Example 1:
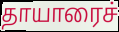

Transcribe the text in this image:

தாயாரைச்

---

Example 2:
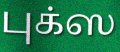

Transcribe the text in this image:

புக்ஸ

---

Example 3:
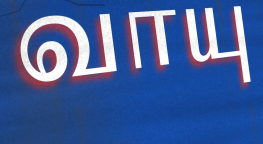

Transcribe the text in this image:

வாயு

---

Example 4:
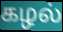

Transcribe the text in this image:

கழல்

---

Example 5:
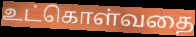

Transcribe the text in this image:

உட்கொள்வதை